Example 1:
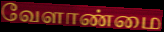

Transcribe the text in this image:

வேளாண்மை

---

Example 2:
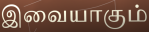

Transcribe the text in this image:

இவையாகும்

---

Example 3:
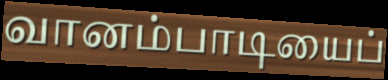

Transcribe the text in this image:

வானம்பாடியைப்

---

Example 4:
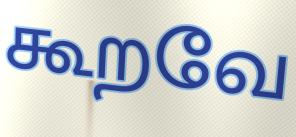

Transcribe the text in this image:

கூறவே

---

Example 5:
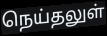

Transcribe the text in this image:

நெய்தலுள்